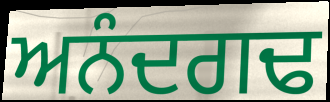
ਅਨੰਦਗਢ